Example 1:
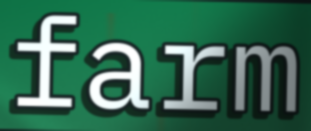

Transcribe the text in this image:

farm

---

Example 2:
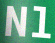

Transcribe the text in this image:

Nl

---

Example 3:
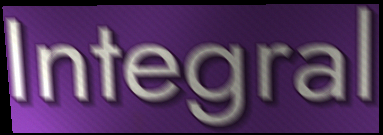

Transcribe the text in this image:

Integral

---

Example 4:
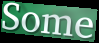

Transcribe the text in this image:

Some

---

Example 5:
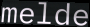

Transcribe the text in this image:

melde